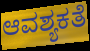
ಆವಶ್ಯಕತೆ